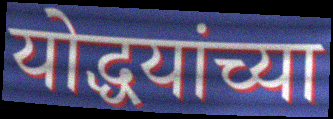
योद्धयांच्या